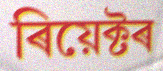
ৰিয়েক্টৰ